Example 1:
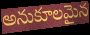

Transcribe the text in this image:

అనుకూలమైన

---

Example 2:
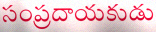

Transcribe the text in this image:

సంప్రదాయకుడు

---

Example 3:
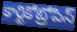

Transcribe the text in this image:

కార్టికోట్రోపిన్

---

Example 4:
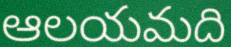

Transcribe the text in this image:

ఆలయమది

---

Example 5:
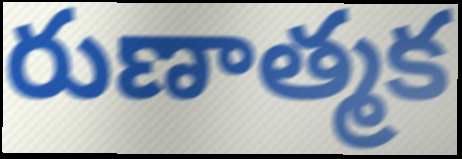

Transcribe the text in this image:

రుణాత్మక